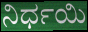
ನಿರ್ಧಯಿ